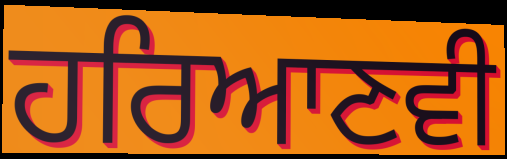
ਹਰਿਆਣਵੀ